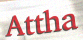
Attha